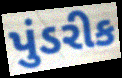
પુંડરીક